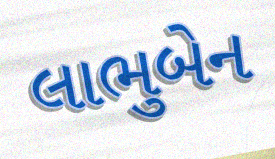
લાભુબેન